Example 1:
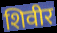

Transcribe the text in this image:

शिवीर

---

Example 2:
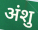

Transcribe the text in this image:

अंशु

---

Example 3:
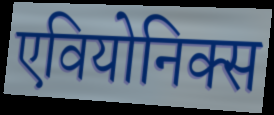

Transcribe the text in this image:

एवियोनिक्स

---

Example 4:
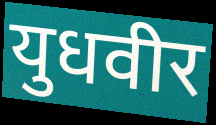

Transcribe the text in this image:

युधवीर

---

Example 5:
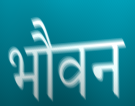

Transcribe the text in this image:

भौवन